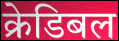
क्रेडिबल